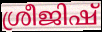
ശ്രീജിഷ്